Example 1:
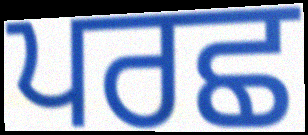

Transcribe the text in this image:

ਪਰਛ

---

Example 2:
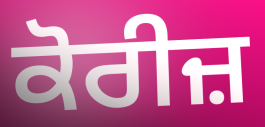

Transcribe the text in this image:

ਕੋਰੀਜ਼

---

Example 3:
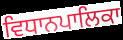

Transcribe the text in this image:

ਵਿਧਾਨਪਾਲਿਕਾ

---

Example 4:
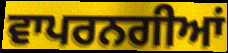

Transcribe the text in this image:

ਵਾਪਰਨਗੀਆਂ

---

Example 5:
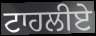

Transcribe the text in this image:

ਟਾਹਲੀਏ